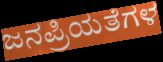
ಜನಪ್ರಿಯತೆಗಳ